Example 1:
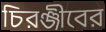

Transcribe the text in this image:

চিরঞ্জীবের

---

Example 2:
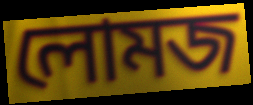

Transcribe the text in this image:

লোমজ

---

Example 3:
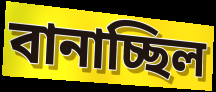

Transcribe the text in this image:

বানাচ্ছিল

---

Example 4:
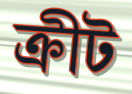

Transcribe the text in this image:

ক্রীট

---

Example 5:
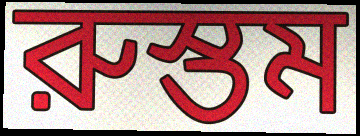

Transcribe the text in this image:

রুস্তম